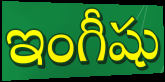
ఇంగీషు